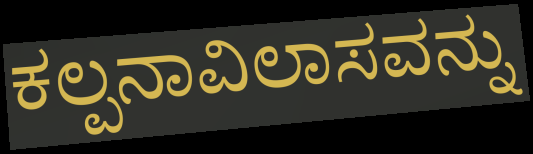
ಕಲ್ಪನಾವಿಲಾಸವನ್ನು